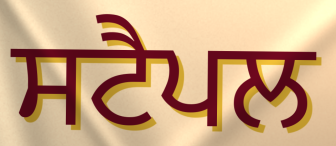
ਸਟੈਪਲ